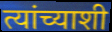
त्यांच्याशी